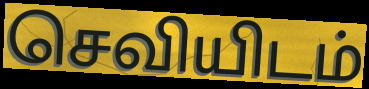
செவியிடம்